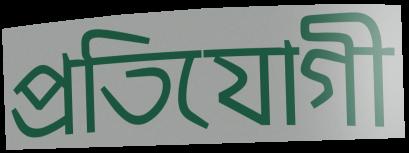
প্ৰতিযোগী